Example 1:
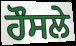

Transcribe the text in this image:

ਹੌਸਲੇ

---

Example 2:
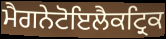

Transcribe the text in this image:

ਮੈਗਨੇਟੋਇਲੈਕਟ੍ਰਿਕ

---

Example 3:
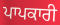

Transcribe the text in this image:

ਪਾਪਕਾਰੀ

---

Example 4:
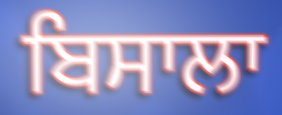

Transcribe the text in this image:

ਬਿਸਾਲਾ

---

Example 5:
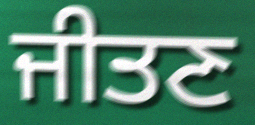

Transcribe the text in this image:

ਜੀਤਣ